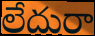
లేదురా